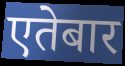
एतेबार